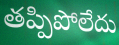
తప్పిపోలేదు